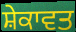
ਸ਼ੇਕਾਵਤ